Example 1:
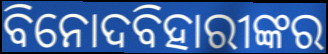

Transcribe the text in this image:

ବିନୋଦବିହାରୀଙ୍କର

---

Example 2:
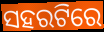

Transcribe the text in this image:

ସହରଟିରେ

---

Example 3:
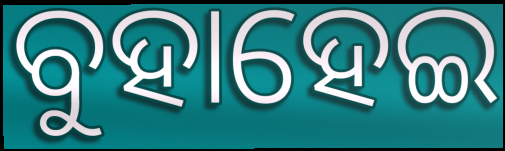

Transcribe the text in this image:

ବୁହାହେଇ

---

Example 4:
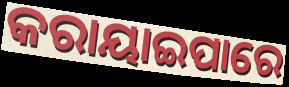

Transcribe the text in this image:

କରାୟାଇପାରେ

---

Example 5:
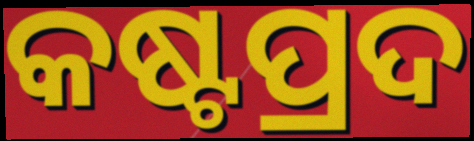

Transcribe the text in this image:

କଷ୍ଟପ୍ରଦ